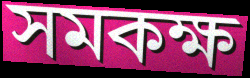
সমকক্ষ